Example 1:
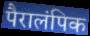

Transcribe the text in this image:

पैरालंपिक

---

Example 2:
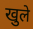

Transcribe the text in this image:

खुले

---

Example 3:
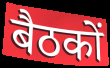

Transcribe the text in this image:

बैठकों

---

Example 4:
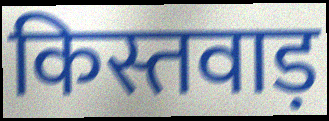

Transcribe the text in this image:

किस्तवाड़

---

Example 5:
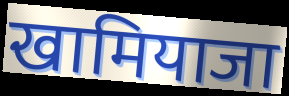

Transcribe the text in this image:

खामियाजा